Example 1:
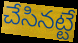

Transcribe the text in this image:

చేసినట్టే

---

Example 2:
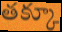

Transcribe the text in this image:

తక్కూ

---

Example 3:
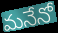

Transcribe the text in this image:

మనేనో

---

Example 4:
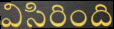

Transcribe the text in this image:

విసిరింది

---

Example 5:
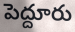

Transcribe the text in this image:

పెద్దూరు